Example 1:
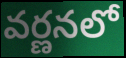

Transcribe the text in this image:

వర్ణనలో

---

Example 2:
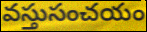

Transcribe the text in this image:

వస్తుసంచయం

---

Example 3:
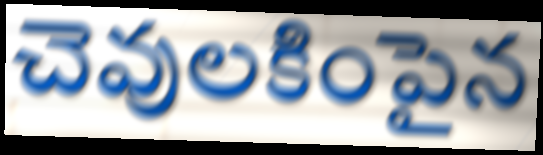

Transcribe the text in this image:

చెవులకింపైన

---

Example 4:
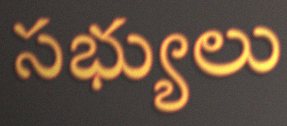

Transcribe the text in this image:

సభ్యులు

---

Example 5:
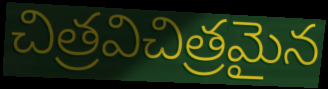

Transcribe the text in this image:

చిత్రవిచిత్రమైన